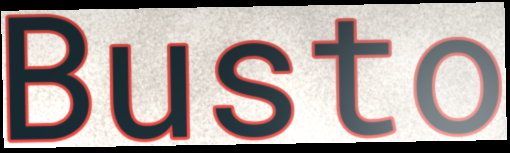
Busto